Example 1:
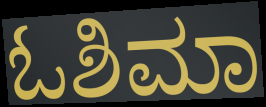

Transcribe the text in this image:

ಓಶಿಮಾ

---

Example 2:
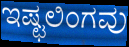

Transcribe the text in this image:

ಇಷ್ಟಲಿಂಗವು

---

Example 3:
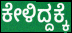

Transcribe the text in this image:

ಕೇಳಿದ್ದಕ್ಕೆ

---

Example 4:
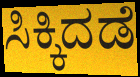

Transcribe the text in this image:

ಸಿಕ್ಕಿದಡೆ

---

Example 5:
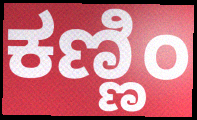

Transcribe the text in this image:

ಕಣ್ಣಿಂ